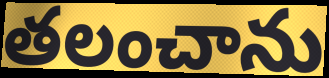
తలంచాను